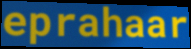
eprahaar